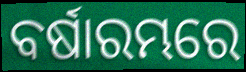
ବର୍ଷାରମ୍ଭରେ